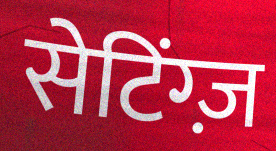
सेटिंग्ज़